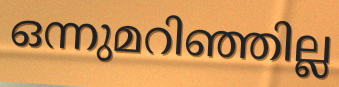
ഒന്നുമറിഞ്ഞില്ല